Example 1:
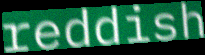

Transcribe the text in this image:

reddish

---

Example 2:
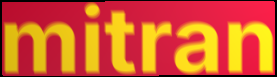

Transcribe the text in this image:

mitran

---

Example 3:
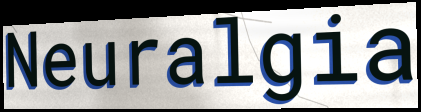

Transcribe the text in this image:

Neuralgia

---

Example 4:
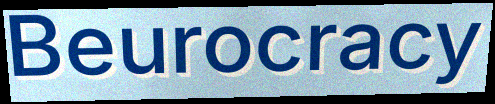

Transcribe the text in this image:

Beurocracy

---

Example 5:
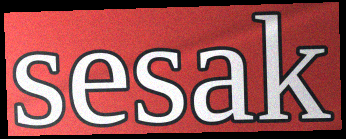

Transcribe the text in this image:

sesak